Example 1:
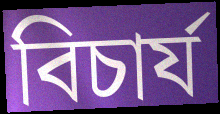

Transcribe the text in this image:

বিচাৰ্য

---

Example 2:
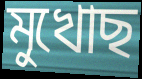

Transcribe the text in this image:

মুখোছ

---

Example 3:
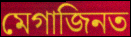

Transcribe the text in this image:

মেগাজিনত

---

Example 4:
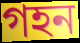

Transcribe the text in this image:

গহন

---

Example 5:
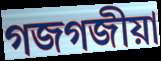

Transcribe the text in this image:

গজগজীয়া